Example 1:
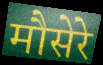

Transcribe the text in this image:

मौसेरे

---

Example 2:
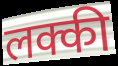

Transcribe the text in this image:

लक्की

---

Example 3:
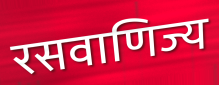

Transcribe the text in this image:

रसवाणिज्य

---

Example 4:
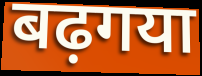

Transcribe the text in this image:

बढ़गया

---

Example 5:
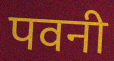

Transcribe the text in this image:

पवनी